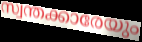
സ്വന്തക്കാരേയും